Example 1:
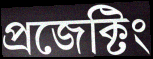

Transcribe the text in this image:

প্রজেক্টিং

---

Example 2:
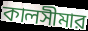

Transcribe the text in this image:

কালসীমার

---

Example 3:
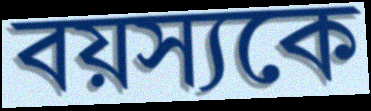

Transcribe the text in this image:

বয়স্যকে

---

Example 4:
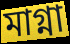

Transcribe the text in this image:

মাগ্না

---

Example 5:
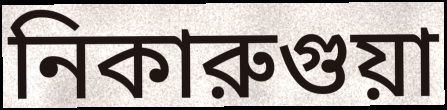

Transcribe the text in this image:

নিকারুগুয়া